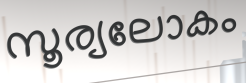
സൂര്യലോകം